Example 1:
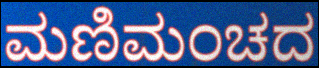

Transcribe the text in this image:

ಮಣಿಮಂಚದ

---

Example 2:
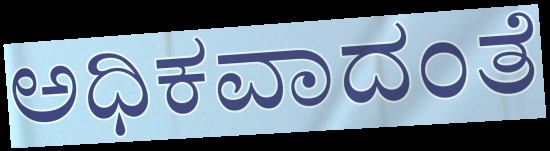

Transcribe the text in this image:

ಅಧಿಕವಾದಂತೆ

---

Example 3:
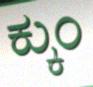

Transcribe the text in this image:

ಕ್ಕುಂ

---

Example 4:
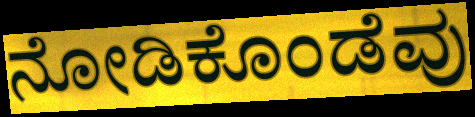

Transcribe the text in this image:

ನೋಡಿಕೊಂಡೆವು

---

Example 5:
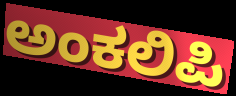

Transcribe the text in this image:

ಅಂಕಲಿಪಿ